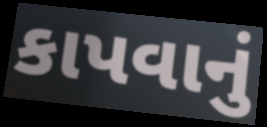
કાપવાનું